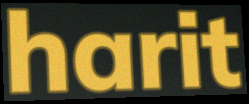
harit